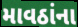
માવઠાંના